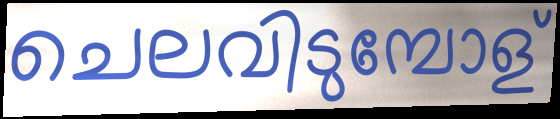
ചെലവിടുമ്പോള്